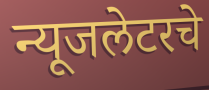
न्यूजलेटरचे